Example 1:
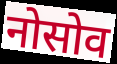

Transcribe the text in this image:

नोसोव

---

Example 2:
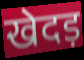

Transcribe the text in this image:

खेदड़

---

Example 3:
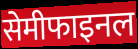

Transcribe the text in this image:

सेमीफाइनल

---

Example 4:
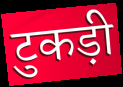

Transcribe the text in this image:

टुकड़ी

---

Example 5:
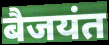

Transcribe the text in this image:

बैजयंत